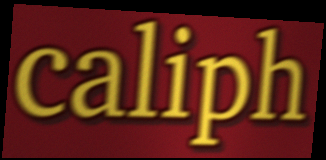
caliph